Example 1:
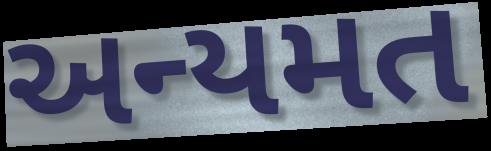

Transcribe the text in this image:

અન્યમત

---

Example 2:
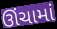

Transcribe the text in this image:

ઊંચામાં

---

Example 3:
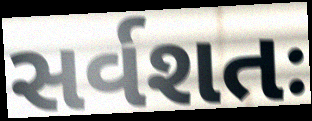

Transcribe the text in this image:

સર્વશતઃ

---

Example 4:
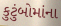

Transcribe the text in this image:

કુટુંબોમાંના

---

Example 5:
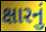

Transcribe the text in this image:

ક્ષારનું